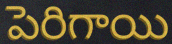
పెరిగాయి